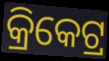
କ୍ରିକେଟ୍ର